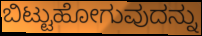
ಬಿಟ್ಟುಹೋಗುವುದನ್ನು